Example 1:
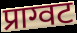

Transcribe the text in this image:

प्राग्वट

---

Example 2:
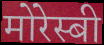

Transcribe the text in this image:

मोरेस्बी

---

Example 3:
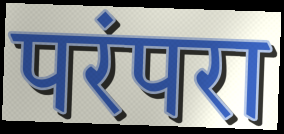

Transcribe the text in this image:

परंपरा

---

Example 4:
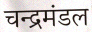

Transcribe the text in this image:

चन्द्रमंडल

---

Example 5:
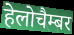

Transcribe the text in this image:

हेलोचैम्बर